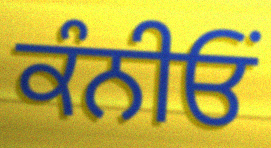
ਕੰਨੀਓਂ